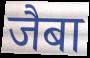
जैबा